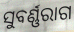
ସୁବର୍ଣ୍ଣରାଗ